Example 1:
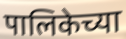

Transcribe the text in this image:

पालिकेच्या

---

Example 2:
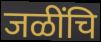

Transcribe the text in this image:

जळींचि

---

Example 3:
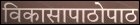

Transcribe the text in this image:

विकासापाठोपाठ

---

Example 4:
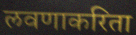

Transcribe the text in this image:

लवणाकरिता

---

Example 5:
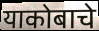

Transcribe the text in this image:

याकोबाचे